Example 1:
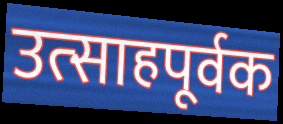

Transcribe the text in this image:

उत्‍साहपूर्वक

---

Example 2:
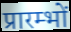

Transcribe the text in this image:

प्रारम्भों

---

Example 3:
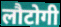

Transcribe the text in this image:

लौटोगी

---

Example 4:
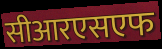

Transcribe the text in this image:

सीआरएसएफ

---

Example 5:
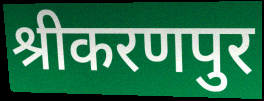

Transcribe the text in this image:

श्रीकरणपुर